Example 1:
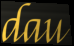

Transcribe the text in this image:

dau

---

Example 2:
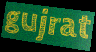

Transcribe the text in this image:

gujrat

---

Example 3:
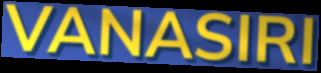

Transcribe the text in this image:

VANASIRI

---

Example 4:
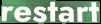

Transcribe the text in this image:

restart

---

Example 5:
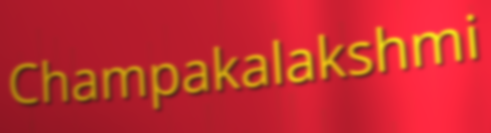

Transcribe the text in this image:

Champakalakshmi